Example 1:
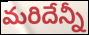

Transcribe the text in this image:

మరిదేన్నీ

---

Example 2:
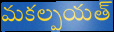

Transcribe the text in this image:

మకల్పయత్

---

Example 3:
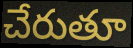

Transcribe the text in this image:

చేరుతూ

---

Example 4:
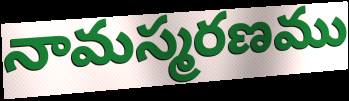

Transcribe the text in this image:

నామస్మరణము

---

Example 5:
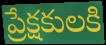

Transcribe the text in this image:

ప్రేక్షకులకి